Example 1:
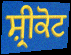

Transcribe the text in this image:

ਸ਼੍ਰੀਕੋਟ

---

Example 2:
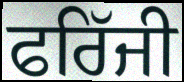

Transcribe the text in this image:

ਫਰਿੱਜੀ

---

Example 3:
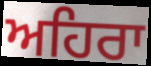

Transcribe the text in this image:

ਅਹਿਰਾ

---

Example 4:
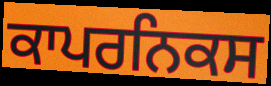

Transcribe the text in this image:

ਕਾਪਰਨਿਕਸ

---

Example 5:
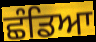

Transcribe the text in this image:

ਛੰਡਿਆ